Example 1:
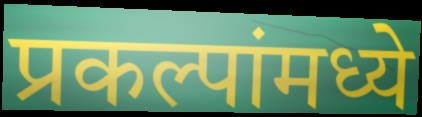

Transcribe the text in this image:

प्रकल्पांमध्ये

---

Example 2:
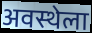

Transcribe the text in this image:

अवस्थेला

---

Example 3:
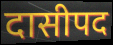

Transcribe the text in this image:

दासीपद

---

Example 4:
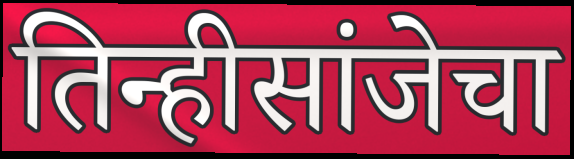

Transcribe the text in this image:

तिन्हीसांजेचा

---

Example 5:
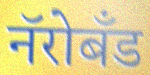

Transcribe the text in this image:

नॅरोबँड